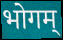
भोगम्